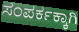
ಸಂಪರ್ಕಕ್ಕಾಗಿ